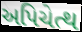
અપિચેત્થ